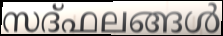
സദ്ഫലങ്ങൾ